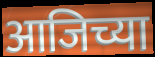
आजिच्या